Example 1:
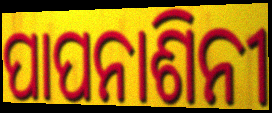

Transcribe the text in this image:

ପାପନାଶିନୀ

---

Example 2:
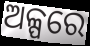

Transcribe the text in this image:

ଅଳ୍ପରେ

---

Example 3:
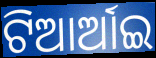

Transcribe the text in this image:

ଟିଆର୍ଆଇ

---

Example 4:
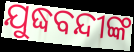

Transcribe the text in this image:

ଯୁଦ୍ଧବନ୍ଦୀଙ୍କ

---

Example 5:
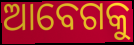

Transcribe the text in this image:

ଆବେଗକୁ